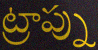
ట్రాప్ను